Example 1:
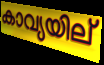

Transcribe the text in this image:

കാവ്യയില്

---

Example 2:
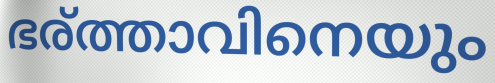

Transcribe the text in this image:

ഭര്ത്താവിനെയും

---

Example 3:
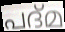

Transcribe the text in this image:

പദ്മ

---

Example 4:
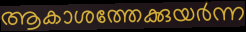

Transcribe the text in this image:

ആകാശത്തേക്കുയർന്ന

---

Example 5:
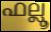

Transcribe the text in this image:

ഫല്ലൂ